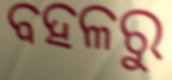
ବହଳରୁ